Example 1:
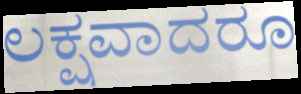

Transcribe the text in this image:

ಲಕ್ಷವಾದರೂ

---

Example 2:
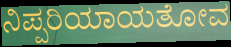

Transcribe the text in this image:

ನಿಪ್ಪರಿಯಾಯತೋವ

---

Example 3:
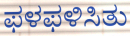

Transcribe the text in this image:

ಫಳಫಳಿಸಿತು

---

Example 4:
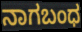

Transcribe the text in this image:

ನಾಗಬಂಧ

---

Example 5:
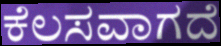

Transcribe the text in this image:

ಕೆಲಸವಾಗದೆ